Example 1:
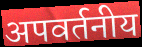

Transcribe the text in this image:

अपवर्तनीय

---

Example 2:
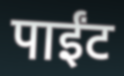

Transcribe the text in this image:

पाईंट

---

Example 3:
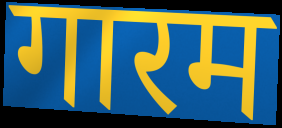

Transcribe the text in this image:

गारम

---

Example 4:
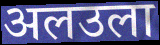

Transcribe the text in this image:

अलउला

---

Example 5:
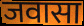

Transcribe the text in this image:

जवासा